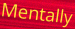
Mentally